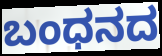
ಬಂಧನದ